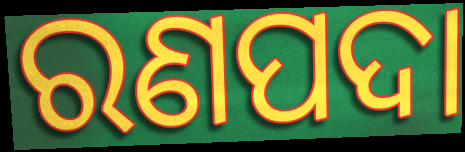
ରଣପଦା